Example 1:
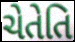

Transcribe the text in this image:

ચેતેતિ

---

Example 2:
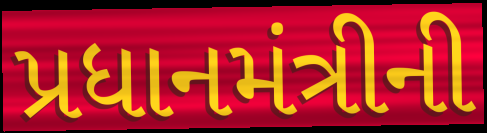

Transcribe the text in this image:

પ્રધાનમંત્રીની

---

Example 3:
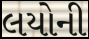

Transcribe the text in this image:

લયોની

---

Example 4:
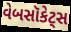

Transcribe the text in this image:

વેબસૉકેટ્સ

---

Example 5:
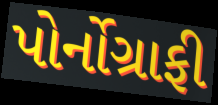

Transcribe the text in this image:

પોર્નોગ્રાફી